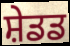
ਸ਼ੇਡਡ